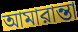
আমারান্তা